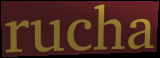
rucha